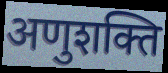
अणुशक्ति